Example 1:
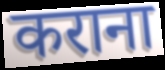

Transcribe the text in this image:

कराना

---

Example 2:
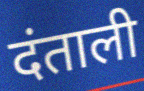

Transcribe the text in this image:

दंताली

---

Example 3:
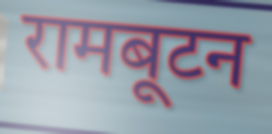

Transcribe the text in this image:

रामबूटन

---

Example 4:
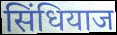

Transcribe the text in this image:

सिंधियाज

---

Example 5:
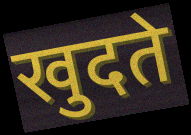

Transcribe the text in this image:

खुदते